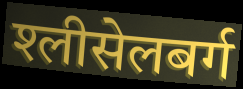
श्लीसेलबर्ग